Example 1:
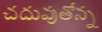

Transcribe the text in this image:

చదువుతోన్న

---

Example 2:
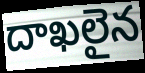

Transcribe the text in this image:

దాఖలైన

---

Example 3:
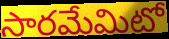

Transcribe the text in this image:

సారమేమిటో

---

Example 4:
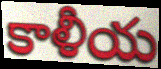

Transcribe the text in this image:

కాళీయ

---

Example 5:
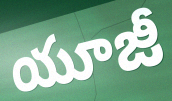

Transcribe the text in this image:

యూజీ